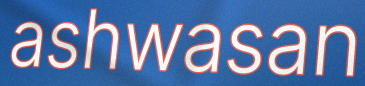
ashwasan